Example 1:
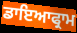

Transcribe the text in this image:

ਡਾਇਆਫ੍ਰਾਮ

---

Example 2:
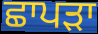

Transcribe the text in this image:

ਛਾਪੜਾ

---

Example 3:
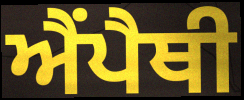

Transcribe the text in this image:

ਐਂਪੈਥੀ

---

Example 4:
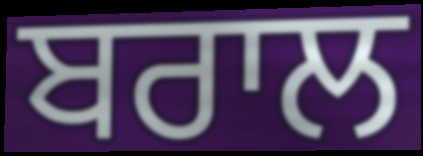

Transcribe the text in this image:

ਬਰਾਲ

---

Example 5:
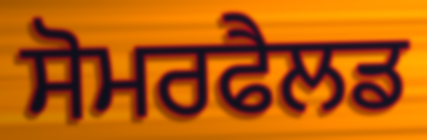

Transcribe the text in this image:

ਸੋਮਰਫੈਲਡ